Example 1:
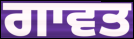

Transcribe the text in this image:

ਗਾਵਤ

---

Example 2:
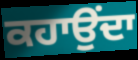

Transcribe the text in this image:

ਕਹਾਉਂਦਾ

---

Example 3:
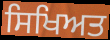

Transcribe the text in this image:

ਸਿਖਿਅਤ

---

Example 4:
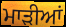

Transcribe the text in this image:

ਮਾੜੀਆਂ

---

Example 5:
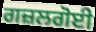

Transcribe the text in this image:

ਗਜ਼ਲਗੋਈ